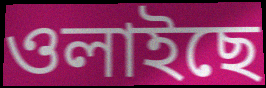
ওলাইছে